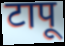
टापू